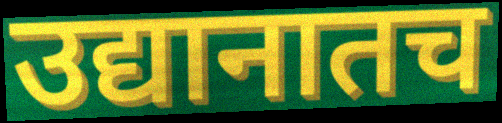
उद्यानातच